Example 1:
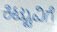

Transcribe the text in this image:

ಕಿಟ್ಟುವಿಗೆ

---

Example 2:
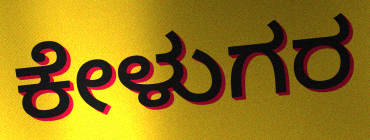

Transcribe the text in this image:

ಕೇಳುಗರ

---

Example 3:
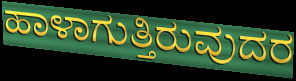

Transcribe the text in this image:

ಹಾಳಾಗುತ್ತಿರುವುದರ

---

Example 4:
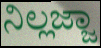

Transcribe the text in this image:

ನಿಲ್ಲಜ್ಜಾ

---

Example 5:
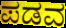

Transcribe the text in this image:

ಪಡವ